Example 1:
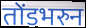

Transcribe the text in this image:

तोंडभरुन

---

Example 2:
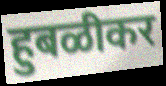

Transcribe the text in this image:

हुबळीकर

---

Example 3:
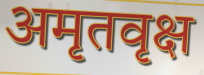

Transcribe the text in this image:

अमृतवृक्ष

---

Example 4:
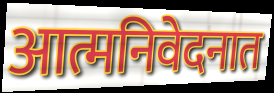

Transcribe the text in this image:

आत्मनिवेदनात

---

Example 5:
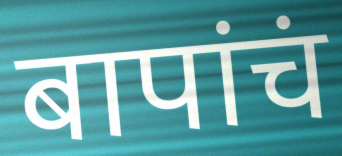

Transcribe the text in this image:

बापांचं